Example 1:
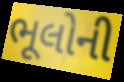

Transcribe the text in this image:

ભૂલોની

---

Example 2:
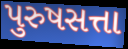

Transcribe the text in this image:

પુરુષસત્તા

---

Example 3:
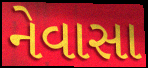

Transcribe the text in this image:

નેવાસા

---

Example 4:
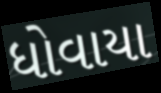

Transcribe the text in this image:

ધોવાયા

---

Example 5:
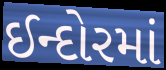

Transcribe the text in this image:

ઈન્દોરમાં